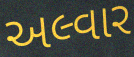
અલ્વાર